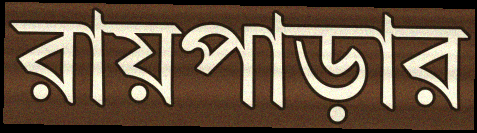
রায়পাড়ার